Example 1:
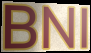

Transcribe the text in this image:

BNI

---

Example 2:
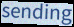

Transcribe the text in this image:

sending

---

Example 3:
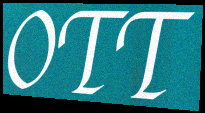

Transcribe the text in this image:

OTT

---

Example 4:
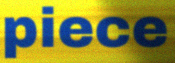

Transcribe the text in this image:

piece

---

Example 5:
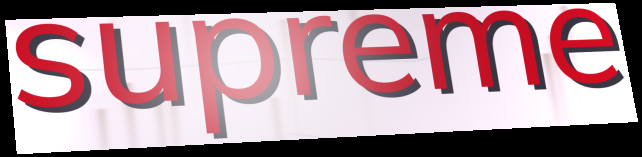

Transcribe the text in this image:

supreme